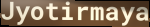
Jyotirmaya